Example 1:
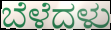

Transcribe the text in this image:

ಬೆಳೆದಳು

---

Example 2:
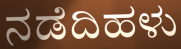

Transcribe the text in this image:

ನಡೆದಿಹಳು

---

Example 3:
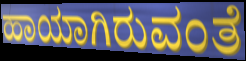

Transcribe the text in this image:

ಹಾಯಾಗಿರುವಂತೆ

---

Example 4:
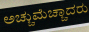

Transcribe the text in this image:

ಅಚ್ಚುಮೆಚ್ಚಾದರು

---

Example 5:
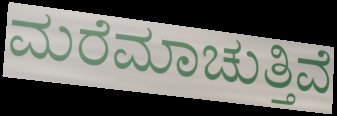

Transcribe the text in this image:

ಮರೆಮಾಚುತ್ತಿವೆ